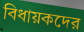
বিধায়কদের